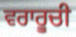
ਵਰਾਰੂਚੀ